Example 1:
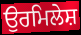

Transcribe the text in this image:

ਉਰਮਿਲੇਸ਼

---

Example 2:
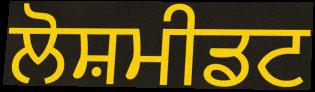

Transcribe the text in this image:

ਲੋਸ਼ਮੀਡਟ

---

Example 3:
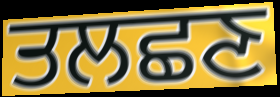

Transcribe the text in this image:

ਤਲਛਣ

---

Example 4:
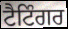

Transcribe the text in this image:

ਟੈਟਿੰਗਰ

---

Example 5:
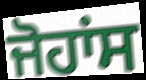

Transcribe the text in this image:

ਜੋਹਾਂਸ